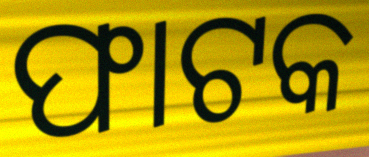
ଫାଟକ